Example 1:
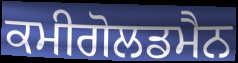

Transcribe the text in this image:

ਕਮੀਗੋਲਡਮੈਨ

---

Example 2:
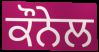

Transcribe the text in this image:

ਕੌਨੇਲ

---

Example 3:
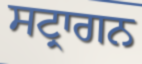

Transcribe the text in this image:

ਸਟ੍ਰਾਗਨ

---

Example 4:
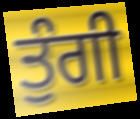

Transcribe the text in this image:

ਤੁੰਗੀ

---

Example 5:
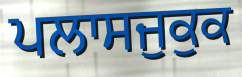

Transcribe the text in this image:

ਪਲਾਸਜੁਕੁਕ